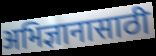
अभिज्ञानासाठी